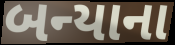
બન્યાના